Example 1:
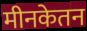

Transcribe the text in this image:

मीनकेतन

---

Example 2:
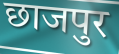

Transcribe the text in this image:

छाजपुर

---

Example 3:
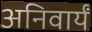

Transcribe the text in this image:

अनिवार्यं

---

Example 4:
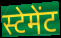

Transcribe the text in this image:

स्टेमेंट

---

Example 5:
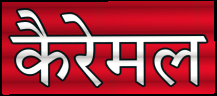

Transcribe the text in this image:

कैरेमल